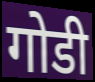
गोडी